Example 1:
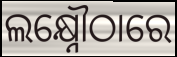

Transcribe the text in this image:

ଲକ୍ଷ୍ନୌଠାରେ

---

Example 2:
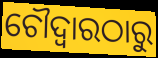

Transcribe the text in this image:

ଚୌଦ୍ୱାରଠାରୁ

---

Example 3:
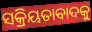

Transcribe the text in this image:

ସକ୍ରିୟତାବାଦକୁ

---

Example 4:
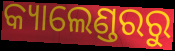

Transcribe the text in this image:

କ୍ୟାଲେଣ୍ଡରରୁ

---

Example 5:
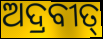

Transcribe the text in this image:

ଅଦ୍ରବୀତ୍